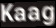
Kaag